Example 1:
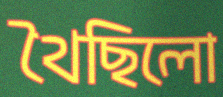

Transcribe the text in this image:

থৈছিলো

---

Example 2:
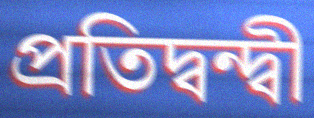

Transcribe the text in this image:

প্ৰতিদ্বন্দ্বী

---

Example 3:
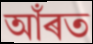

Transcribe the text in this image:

আঁৰত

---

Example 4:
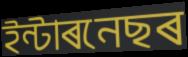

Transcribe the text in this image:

ইন্টাৰনেছৰ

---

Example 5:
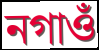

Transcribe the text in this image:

নগাওঁ